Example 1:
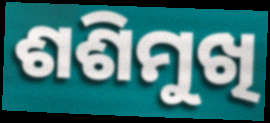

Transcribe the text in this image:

ଶଶିମୁଖି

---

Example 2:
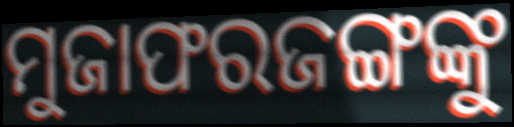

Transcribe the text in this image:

ମୁଜାଫରଜଙ୍ଗଙ୍କୁ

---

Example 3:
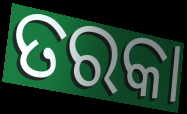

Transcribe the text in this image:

ତରକା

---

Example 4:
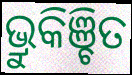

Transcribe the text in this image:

ଭ୍ରୁକିଞ୍ଚିତ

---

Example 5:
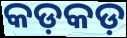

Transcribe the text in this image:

କଡ଼କଡ଼